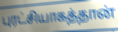
புரட்சியாகத்தான்